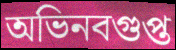
অভিনবগুপ্ত